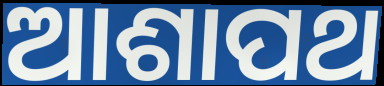
ଆଶାପଥ